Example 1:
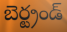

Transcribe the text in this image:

బెర్ట్రండ్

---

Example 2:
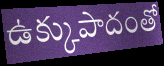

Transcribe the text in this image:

ఉక్కుపాదంతో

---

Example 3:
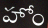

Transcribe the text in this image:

హోం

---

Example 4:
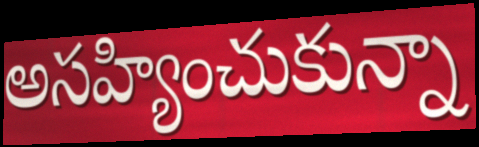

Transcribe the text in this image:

అసహ్యించుకున్నా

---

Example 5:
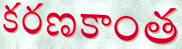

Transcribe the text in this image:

కరణకాంత